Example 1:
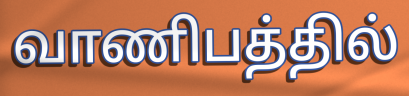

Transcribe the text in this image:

வாணிபத்தில்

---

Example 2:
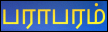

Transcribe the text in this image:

பராபரம்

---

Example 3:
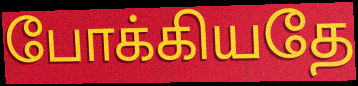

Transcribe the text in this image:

போக்கியதே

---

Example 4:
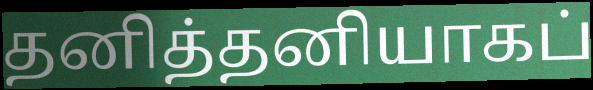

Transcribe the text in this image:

தனித்தனியாகப்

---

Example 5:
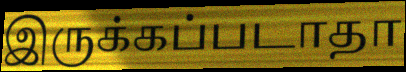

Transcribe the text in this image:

இருக்கப்படாதா